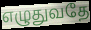
எழுதுவதே